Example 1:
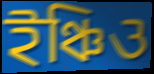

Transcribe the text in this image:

ইঞ্চিও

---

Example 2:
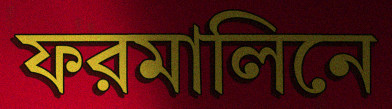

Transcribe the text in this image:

ফরমালিনে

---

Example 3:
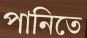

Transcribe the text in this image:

পানিতে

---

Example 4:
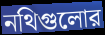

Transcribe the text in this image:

নথিগুলোর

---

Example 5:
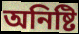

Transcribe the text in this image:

অনিষ্টি